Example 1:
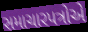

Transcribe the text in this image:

સમાચારપત્રોએ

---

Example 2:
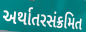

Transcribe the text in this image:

અર્થાતરસંક્રમિત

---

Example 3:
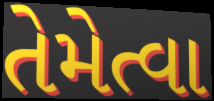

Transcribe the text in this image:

તેમેત્વા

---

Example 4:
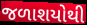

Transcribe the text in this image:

જળાશયોથી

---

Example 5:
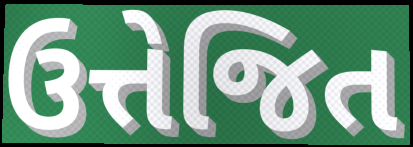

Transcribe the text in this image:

ઉત્તેજિત